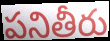
పనితీరు